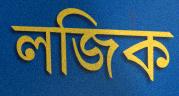
লজিক